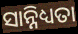
ସାନ୍ନିଧ୍ୟତା